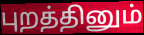
புறத்தினும்